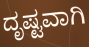
ದೃಷ್ಟವಾಗಿ